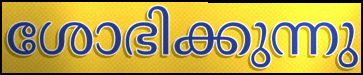
ശോഭിക്കുന്നു